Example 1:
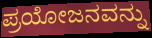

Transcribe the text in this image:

ಪ್ರಯೋಜನವನ್ನು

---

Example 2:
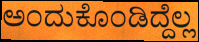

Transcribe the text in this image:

ಅಂದುಕೊಂಡಿದ್ದೆಲ್ಲ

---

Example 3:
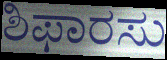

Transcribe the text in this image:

ಶಿಫಾರಸು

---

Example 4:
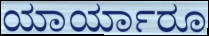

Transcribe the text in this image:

ಯಾರ್ಯಾರೂ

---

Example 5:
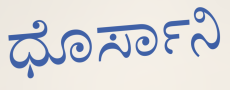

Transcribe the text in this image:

ಧೊರ್ಸಾನಿ